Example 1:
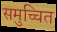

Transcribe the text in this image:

समुच्चित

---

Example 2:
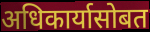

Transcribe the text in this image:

अधिकार्यासोबत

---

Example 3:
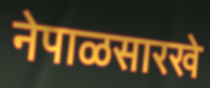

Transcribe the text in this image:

नेपाळसारखे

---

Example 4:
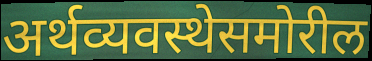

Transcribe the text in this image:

अर्थव्यवस्थेसमोरील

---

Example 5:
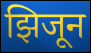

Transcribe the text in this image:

झिजून